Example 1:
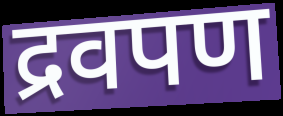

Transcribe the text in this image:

द्रवपण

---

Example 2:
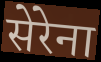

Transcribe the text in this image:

सेरेना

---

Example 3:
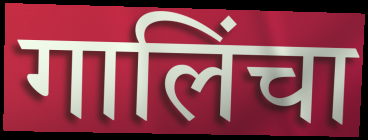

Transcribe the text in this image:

गालिंचा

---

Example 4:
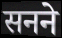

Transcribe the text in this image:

सनने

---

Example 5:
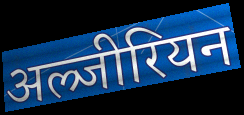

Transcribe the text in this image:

अल्जीरियन